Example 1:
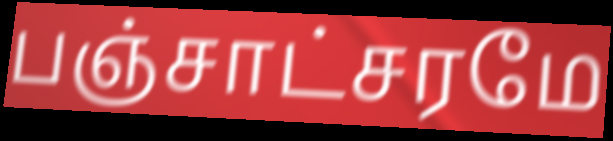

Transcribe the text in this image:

பஞ்சாட்சரமே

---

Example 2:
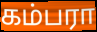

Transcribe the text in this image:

கம்பரா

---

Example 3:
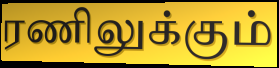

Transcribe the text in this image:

ரணிலுக்கும்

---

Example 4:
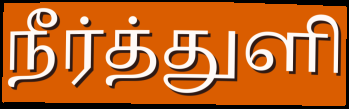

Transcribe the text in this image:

நீர்த்துளி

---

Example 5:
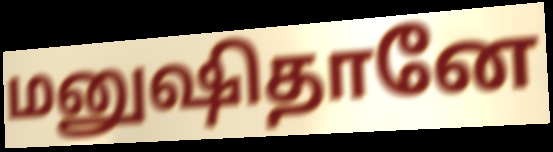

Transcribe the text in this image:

மனுஷிதானே